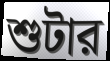
শুটার